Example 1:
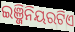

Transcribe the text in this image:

ଇଞ୍ଜିନିୟରଟିଏ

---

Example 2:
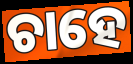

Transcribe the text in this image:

ଚାହେ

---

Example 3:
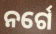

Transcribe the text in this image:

ନର୍ଗେ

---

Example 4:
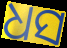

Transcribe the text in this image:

ଧସ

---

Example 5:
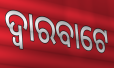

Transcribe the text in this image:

ଦ୍ୱାରବାଟେ